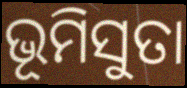
ଭୂମିସୁତା